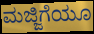
ಮಜ್ಜಿಗೆಯೂ